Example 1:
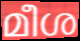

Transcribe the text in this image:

മീശ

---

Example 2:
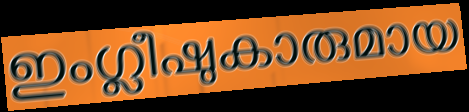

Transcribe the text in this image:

ഇംഗ്ലീഷുകാരുമായ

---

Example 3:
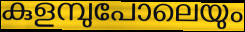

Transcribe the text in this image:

കുളമ്പുപോലെയും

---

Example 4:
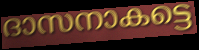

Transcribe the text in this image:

ദാസനാകട്ടെ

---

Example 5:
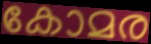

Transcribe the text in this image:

കോമര